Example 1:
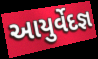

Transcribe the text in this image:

આયુર્વેદજ્ઞ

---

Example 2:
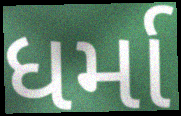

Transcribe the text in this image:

ધર્મા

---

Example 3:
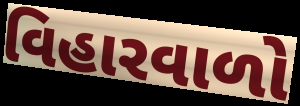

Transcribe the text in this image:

વિહારવાળો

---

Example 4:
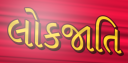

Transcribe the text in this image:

લોકજાતિ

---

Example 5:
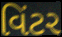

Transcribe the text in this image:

વિંટર